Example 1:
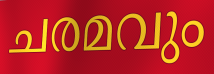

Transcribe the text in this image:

ചരമവും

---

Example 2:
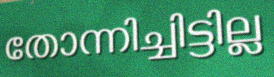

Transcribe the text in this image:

തോന്നിച്ചിട്ടില്ല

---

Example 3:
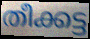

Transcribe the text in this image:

തീക്കട്ട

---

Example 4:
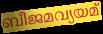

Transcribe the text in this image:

ബീജമവ്യയമ്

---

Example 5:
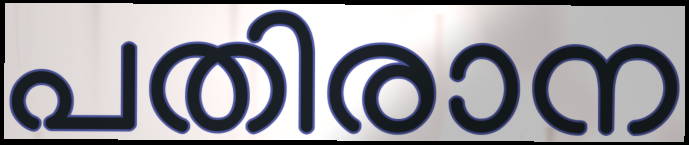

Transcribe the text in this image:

പതിരാന